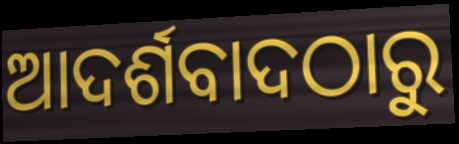
ଆଦର୍ଶବାଦଠାରୁ